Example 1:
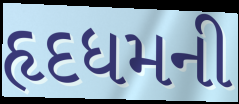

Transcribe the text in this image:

હૃદધમની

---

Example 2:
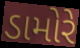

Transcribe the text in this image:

ડામોરે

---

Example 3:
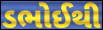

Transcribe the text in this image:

ડભોઈથી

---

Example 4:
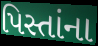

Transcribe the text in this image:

પિસ્તાંના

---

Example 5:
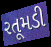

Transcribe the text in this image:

રતૂમડી